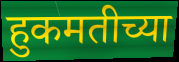
हुकमतीच्या